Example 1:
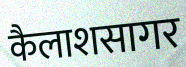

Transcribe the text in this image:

कैलाशसागर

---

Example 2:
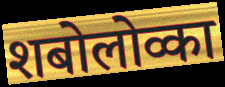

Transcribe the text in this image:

शबोलोव्का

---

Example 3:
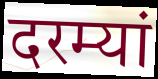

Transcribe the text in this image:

दरम्यां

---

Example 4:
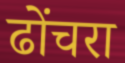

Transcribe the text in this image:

ढोंचरा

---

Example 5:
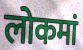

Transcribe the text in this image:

लोकमां